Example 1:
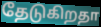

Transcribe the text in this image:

தேடுகிறதா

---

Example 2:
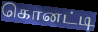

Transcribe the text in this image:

கொனட்டி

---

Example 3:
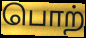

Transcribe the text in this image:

பொற்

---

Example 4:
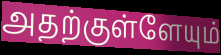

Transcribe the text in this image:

அதற்குள்ளேயும்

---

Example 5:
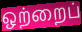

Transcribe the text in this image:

ஒற்றைப்